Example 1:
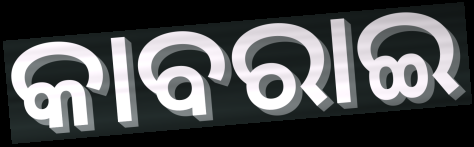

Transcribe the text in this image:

କାବରାଇ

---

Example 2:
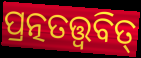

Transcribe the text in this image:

ପ୍ରତ୍ନତତ୍ତ୍ଵବିତ୍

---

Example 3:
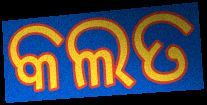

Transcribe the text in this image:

କଲତ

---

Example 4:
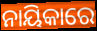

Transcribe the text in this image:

ନାୟିକାରେ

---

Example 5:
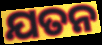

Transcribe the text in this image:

ଯତନ